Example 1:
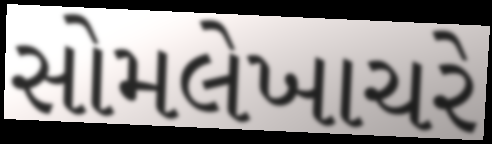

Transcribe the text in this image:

સોમલેખાચરે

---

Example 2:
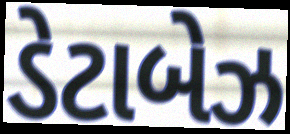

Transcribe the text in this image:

ડેટાબેઝ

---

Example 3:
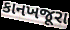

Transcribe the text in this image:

કાનખજૂરા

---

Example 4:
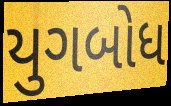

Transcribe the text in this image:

યુગબોધ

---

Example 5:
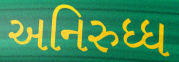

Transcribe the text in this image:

અનિરુધ્ધ